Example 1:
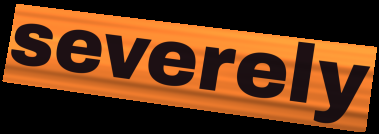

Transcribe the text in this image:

severely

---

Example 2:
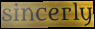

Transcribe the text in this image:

sincerly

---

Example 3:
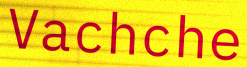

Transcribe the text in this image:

Vachche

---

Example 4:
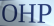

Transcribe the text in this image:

OHP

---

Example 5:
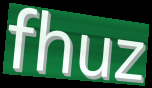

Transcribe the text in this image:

fhuz